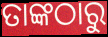
ତାଙ୍କଠାରୁ